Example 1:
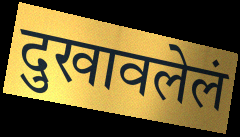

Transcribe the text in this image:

दुखावलेलं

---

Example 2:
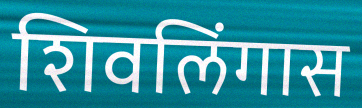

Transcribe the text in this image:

शिवलिंगास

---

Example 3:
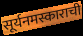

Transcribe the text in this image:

सूर्यनमस्काराची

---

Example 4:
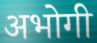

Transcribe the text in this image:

अभोगी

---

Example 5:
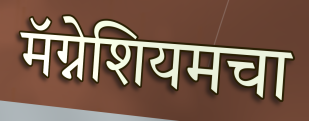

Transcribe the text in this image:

मॅग्नेशियमचा